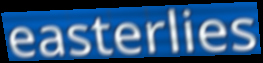
easterlies